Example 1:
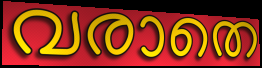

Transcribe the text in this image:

വരാതെ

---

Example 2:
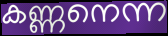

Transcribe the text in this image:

കണ്ണനെന്ന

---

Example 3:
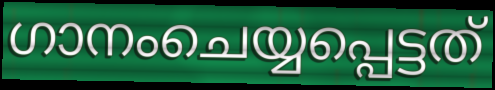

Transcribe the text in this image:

ഗാനംചെയ്യപ്പെട്ടത്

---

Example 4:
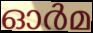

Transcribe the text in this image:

ഓർമ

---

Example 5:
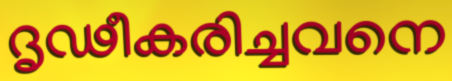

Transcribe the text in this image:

ദൃഢീകരിച്ചവനെ